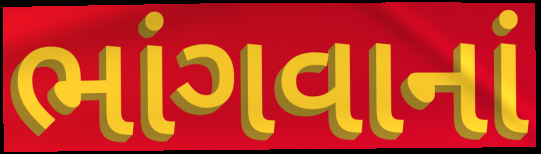
ભાંગવાનાં